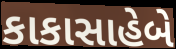
કાકાસાહેબે